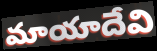
మాయాదేవి